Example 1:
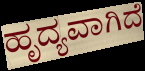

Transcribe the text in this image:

ಹೃದ್ಯವಾಗಿದೆ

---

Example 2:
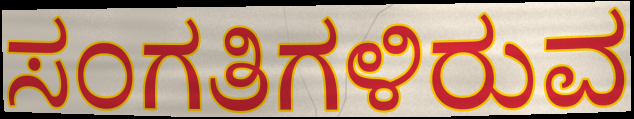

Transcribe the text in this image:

ಸಂಗತಿಗಳಿರುವ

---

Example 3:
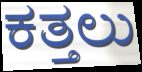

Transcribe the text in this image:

ಕತ್ತಲು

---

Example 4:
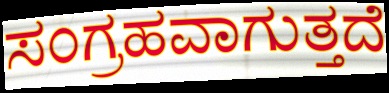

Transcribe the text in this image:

ಸಂಗ್ರಹವಾಗುತ್ತದೆ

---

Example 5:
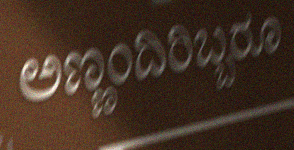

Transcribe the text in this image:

ಅಣ್ಣಂದಿರಿಬ್ಬರೂ